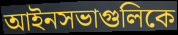
আইনসভাগুলিকে